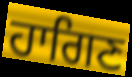
ਹਾਗਿਣ